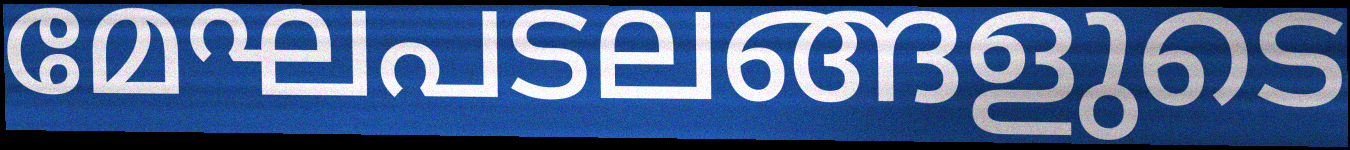
മേഘപടലങ്ങളുടെ